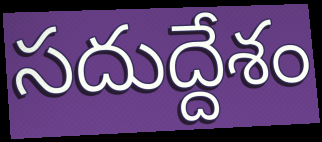
సదుద్దేశం